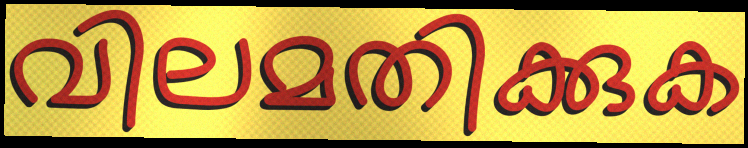
വിലമതിക്കുക